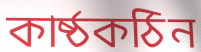
কাষ্ঠকঠিন